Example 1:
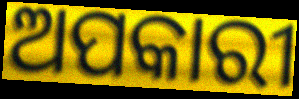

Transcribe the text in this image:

ଅପକାରୀ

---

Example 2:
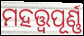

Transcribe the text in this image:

ମହତ୍ତ୍ୱପୂର୍ଣ୍ଣ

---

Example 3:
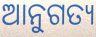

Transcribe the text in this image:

ଆନୁଗତ୍ୟ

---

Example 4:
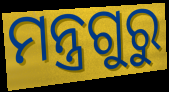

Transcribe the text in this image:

ମନ୍ତ୍ରଗୁରୁ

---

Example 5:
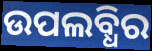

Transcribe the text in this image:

ଉପଲବ୍ଧିର